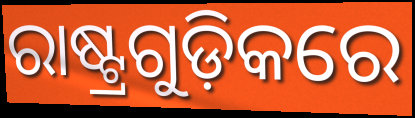
ରାଷ୍ଟ୍ରଗୁଡ଼ିକରେ